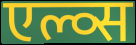
एल्व्स